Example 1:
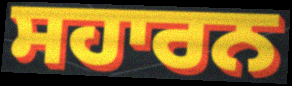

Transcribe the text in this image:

ਸਹਾਰਨ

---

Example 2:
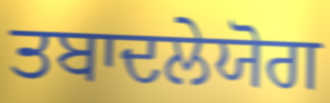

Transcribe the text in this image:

ਤਬਾਦਲੇਯੋਗ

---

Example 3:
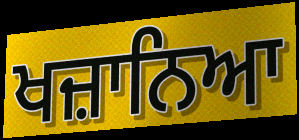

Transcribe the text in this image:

ਖਜ਼ਾਨਿਆ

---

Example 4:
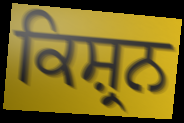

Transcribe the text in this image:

ਕਿਸ਼੍ਰਨ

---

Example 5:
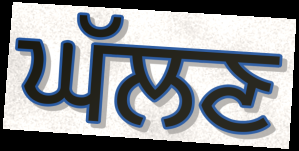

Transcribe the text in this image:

ਘੱਲਣ